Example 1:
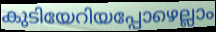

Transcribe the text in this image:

കുടിയേറിയപ്പോഴെല്ലാം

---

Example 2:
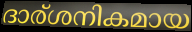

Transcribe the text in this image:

ദാര്ശനികമായ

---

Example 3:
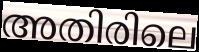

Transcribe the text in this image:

അതിരിലെ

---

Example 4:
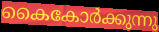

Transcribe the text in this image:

കൈകോർക്കുന്നു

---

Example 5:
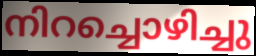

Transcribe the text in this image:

നിറച്ചൊഴിച്ചു